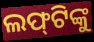
ଲଫ୍‌ଟିଙ୍କୁ